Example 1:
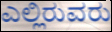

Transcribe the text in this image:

ಎಲ್ಲಿರುವರು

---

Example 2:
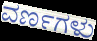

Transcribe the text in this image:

ವರ್ಣಗಳು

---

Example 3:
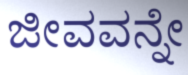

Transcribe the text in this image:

ಜೀವವನ್ನೇ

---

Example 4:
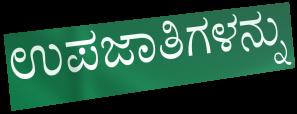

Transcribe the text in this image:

ಉಪಜಾತಿಗಳನ್ನು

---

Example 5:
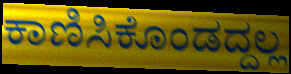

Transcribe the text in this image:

ಕಾಣಿಸಿಕೊಂಡದ್ದಲ್ಲ